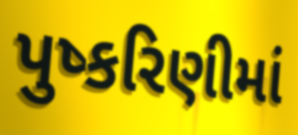
પુષ્કરિણીમાં